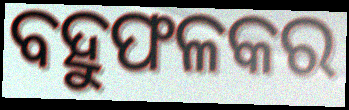
ବହୁଫଳକର